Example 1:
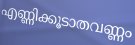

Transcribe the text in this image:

എണ്ണിക്കൂടാതവണ്ണം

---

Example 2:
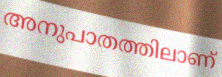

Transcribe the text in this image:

അനുപാതത്തിലാണ്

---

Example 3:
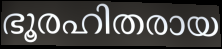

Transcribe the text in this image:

ഭൂരഹിതരായ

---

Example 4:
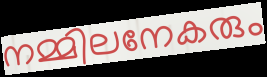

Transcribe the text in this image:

നമ്മിലനേകരും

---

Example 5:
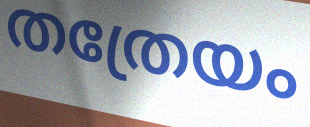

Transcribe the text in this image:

തത്രേയം